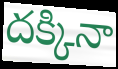
దక్కినా